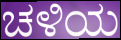
ಚಳಿಯ